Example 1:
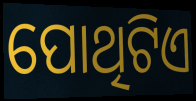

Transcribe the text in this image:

ପୋଥିଟିଏ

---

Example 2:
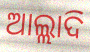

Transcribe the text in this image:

ଆଲ୍ଲାଦି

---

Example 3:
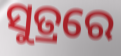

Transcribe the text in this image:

ସୁତ୍ରରେ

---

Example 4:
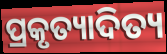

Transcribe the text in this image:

ପ୍ରକୃତ୍ୟାଦିତ୍ୟ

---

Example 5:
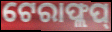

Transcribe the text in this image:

ଟେରାଫ୍ଲପ୍